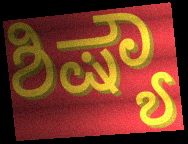
ಶಿಷ್ಯೌ